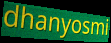
dhanyosmi